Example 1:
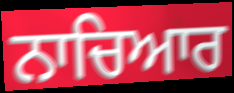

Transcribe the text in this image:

ਨਾਚਿਆਰ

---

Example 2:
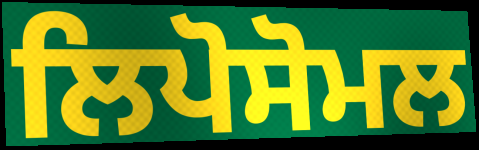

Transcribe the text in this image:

ਲਿਪੋਸੋਮਲ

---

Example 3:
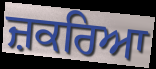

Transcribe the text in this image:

ਜ਼ਕਰਿਆ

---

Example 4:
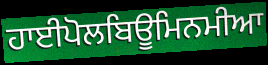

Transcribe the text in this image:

ਹਾਈਪੋਲਬਿਊਮਿਨਮੀਆ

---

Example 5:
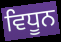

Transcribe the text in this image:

ਵਿਧੂਨ